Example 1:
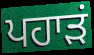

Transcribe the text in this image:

ਪਹਾੜਂ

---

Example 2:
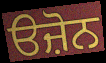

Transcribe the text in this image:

ੳਜ਼ੋਨ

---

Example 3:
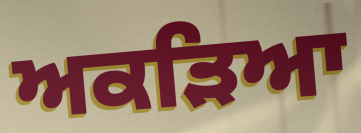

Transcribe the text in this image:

ਅਕੜਿਆ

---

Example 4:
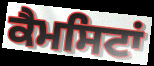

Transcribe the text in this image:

ਕੈਮਸਿਟਾਂ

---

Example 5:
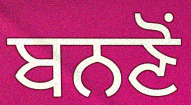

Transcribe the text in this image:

ਬਨਣੋਂ